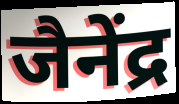
जैनेंद्र